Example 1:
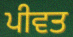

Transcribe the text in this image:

ਪੀਵਤ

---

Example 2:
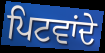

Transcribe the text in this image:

ਪਿਟਵਾਂਦੇ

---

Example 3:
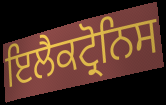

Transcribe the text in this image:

ਇਲੈਕਟ੍ਰੋਨਿਸ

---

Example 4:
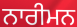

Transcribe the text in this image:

ਨਾਰੀਮਨ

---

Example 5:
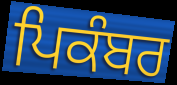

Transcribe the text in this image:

ਪਿਕੰਬਰ